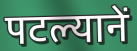
पटल्यानें